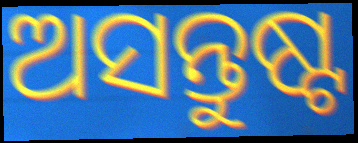
ଅସନ୍ତୁଷ୍ଟ